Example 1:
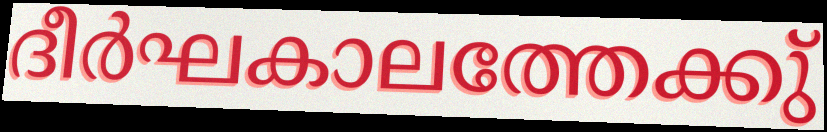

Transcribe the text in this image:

ദീർഘകാലത്തേക്കു്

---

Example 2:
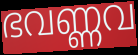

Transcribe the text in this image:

ഭവണ്ണവ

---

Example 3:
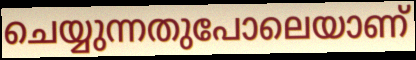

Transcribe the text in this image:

ചെയ്യുന്നതുപോലെയാണ്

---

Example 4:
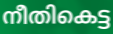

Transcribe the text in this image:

നീതികെട്ട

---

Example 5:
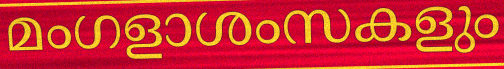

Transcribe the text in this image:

മംഗളാശംസകളും